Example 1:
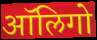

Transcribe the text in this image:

ऑलिगो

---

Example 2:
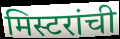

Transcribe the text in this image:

मिस्टरांची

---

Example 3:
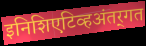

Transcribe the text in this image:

इनिशिएटिव्हअंतर्गत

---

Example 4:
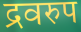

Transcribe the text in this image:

द्रवरुप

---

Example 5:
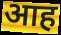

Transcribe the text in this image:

आह